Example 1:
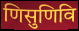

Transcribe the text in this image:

णिसुणिवि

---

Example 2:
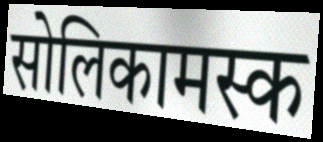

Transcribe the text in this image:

सोलिकामस्क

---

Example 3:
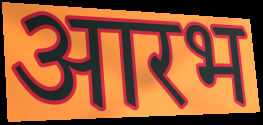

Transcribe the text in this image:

आरभ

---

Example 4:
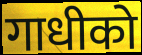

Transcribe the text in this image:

गाधीको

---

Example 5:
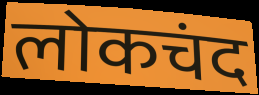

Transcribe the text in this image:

लोकचंद